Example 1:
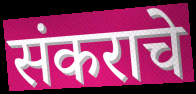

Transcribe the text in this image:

संकराचे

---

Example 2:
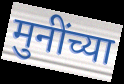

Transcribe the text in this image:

मुनींच्या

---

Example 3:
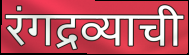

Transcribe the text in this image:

रंगद्रव्याची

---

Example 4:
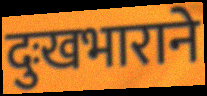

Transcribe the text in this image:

दुःखभाराने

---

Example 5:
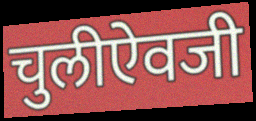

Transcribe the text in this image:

चुलीऐवजी